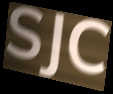
SJC